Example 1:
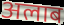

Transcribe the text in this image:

अलाब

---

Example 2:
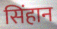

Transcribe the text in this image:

सिंहान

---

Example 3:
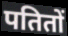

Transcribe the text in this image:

पतितों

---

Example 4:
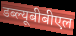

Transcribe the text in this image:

डब्ल्यूबीबीएल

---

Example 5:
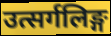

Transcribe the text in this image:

उत्सर्गलिङ्ग